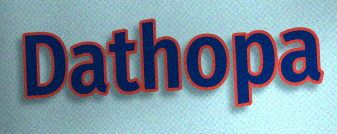
Dathopa